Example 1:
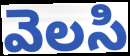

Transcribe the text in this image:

వెలసి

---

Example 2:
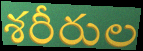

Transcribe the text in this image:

శరీరుల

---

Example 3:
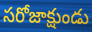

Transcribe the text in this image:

సరోజాక్షుండు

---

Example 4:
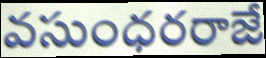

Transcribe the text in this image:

వసుంధరరాజే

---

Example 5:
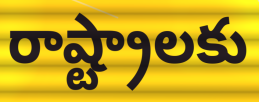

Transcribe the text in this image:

రాష్ట్రాలకు